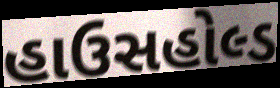
હાઉસહોલ્ડ